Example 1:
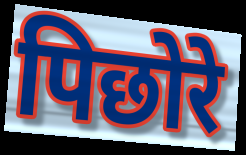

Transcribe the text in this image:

पिछोरे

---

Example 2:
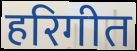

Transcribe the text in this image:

हरिगीत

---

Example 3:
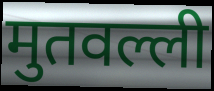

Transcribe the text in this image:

मुतवल्ली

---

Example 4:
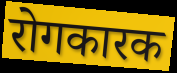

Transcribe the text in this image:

रोगकारक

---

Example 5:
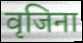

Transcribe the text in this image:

वृजिना